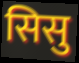
सिसु